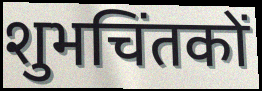
शुभचिंतकों